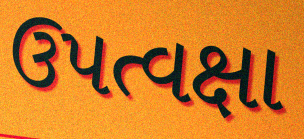
ઉપત્વક્ષા